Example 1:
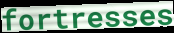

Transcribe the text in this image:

fortresses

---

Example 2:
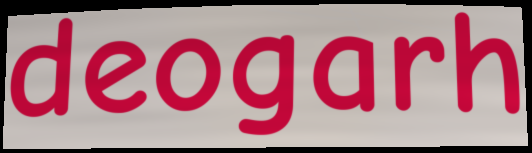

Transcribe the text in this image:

deogarh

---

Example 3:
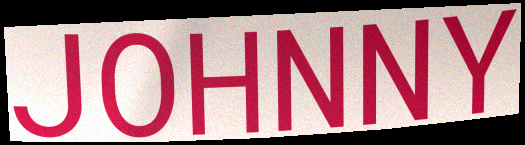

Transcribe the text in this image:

JOHNNY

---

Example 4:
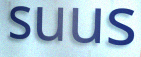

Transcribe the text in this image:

suus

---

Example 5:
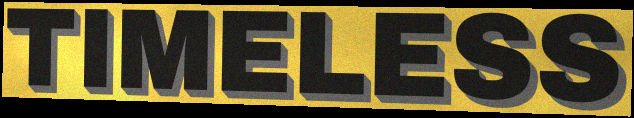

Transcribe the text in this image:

TIMELESS